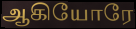
ஆகியோரே